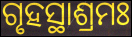
ଗୃହସ୍ଥାଶ୍ରମଃ